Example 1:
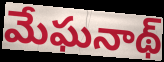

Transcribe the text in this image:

మేఘనాథ్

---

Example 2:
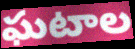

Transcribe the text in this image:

ఘటాల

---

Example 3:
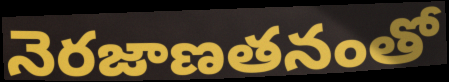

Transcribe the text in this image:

నెరజాణతనంతో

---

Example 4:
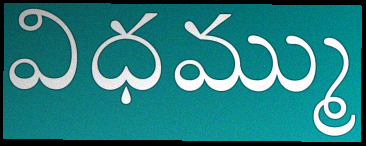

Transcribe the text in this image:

విధమ్ము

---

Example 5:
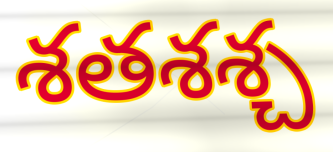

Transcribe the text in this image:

శతశశ్చ